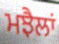
ਮਝੈਲਾਂ